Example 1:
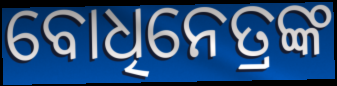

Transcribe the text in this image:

ବୋଧିନେତ୍ରଙ୍କ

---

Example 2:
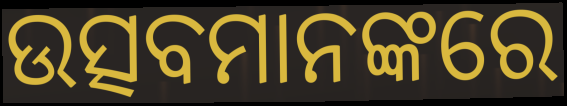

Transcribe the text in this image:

ଉତ୍ସବମାନଙ୍କରେ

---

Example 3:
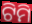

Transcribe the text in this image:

ଟିମି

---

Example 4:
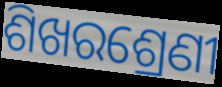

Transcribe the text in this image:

ଶିଖରଶ୍ରେଣୀ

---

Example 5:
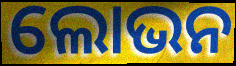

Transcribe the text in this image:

ଲୋଭନ